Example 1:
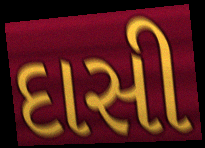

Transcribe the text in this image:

દાસી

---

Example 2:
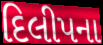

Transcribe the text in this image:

દિલીપના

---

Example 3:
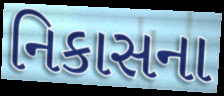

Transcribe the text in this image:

નિકાસના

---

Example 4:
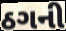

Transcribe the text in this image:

ઠગની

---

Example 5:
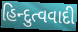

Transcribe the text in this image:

હિન્દુત્વવાદી